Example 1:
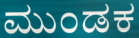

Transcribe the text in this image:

ಮುಂಡಕ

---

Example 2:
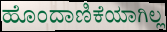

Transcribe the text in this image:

ಹೊಂದಾಣಿಕೆಯಾಗಿಲ್ಲ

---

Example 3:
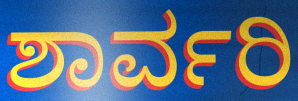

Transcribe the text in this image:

ಶಾರ್ವರಿ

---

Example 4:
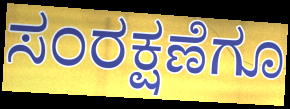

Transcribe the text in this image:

ಸಂರಕ್ಷಣೆಗೂ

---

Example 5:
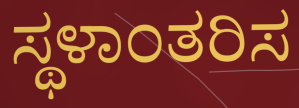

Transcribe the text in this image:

ಸ್ಥಳಾಂತರಿಸ